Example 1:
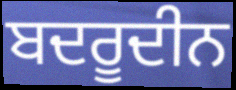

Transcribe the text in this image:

ਬਦਰੂਦੀਨ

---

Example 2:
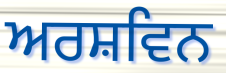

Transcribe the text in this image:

ਅਰਸ਼ਵਿਨ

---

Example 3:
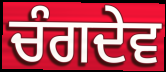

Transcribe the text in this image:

ਚੰਗਦੇਵ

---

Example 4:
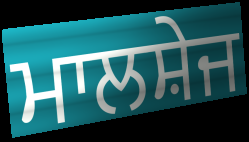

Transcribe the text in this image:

ਮਾਲਸ਼ੇਜ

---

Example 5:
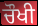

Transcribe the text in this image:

ਚੌਖੀ